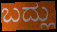
ಬದ್ಲು